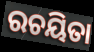
ରଚୟିତା